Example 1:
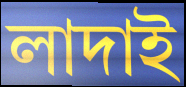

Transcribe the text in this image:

লাদাই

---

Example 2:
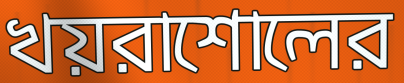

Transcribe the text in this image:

খয়রাশোলের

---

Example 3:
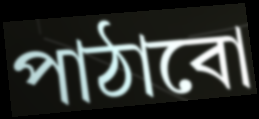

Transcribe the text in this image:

পাঠাবো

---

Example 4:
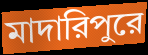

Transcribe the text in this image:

মাদারিপুরে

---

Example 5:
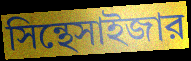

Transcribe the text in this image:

সিন্থেসাইজার